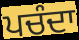
ਪਚੰਦਾ